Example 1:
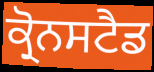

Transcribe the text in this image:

ਕ੍ਰੋਨਸਟੈਡ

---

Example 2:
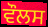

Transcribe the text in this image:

ਵੌਲਸ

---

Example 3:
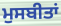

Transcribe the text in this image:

ਮੁਸਬੀਤਾਂ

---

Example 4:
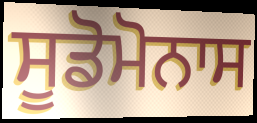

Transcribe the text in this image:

ਸੂਡੋਮੋਨਾਸ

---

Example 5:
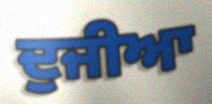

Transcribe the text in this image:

ਦੁਜੀਆ